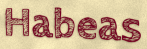
Habeas